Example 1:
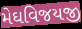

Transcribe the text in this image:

મેઘવિજયજી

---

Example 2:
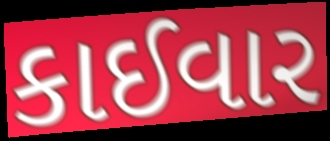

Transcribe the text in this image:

કાઈવાર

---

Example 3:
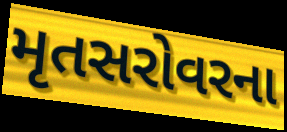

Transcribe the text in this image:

મૃતસરોવરના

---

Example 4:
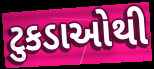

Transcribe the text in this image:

ટુકડાઓથી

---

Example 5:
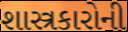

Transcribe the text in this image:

શાસ્ત્રકારોની